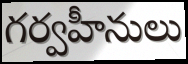
గర్వహీనులు